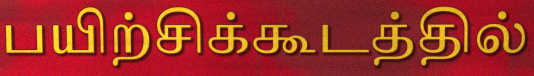
பயிற்சிக்கூடத்தில்